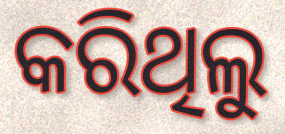
କରିଥିଲୁ